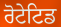
ਰੋਟੇਟਿਡ